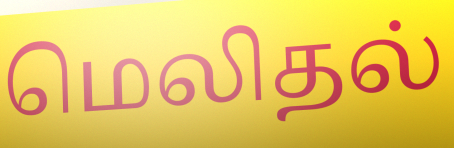
மெலிதல்